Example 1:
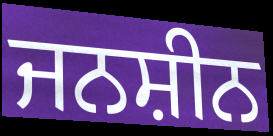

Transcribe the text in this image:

ਜਨਸ਼ੀਨ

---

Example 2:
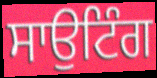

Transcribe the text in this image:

ਸਾਉਟਿੰਗ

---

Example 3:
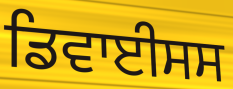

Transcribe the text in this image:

ਡਿਵਾਈਸਸ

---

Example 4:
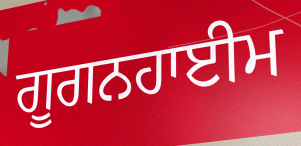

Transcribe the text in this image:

ਗੂਗਨਹਾਈਮ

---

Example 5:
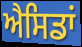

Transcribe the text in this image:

ਐਸਿਡਾਂ